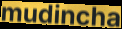
mudincha